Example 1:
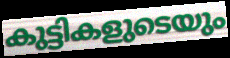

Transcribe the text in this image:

കുട്ടികളുടെയും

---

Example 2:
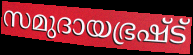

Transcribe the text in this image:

സമുദായഭ്രഷ്ട്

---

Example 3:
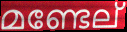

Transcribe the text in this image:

മണ്ടേല്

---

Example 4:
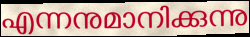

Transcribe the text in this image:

എന്നനുമാനിക്കുന്നു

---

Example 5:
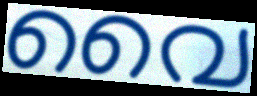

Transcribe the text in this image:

വൈ